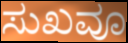
ಸುಖವೂ